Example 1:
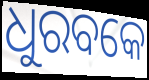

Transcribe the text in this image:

ଧୁରବକେ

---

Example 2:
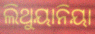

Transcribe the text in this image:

ଲିଥୁୟାନିୟା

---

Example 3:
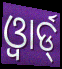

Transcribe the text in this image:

ଓ୍ୱାର୍ଡ୍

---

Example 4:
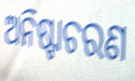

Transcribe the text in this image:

ଅନିଷ୍ଟାଚରଣ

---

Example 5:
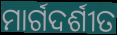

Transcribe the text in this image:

ମାର୍ଗଦର୍ଶୀତ